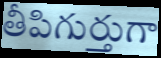
తీపిగుర్తుగా